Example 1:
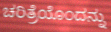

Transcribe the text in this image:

ಚರಿತ್ರೆಯೊಂದನ್ನು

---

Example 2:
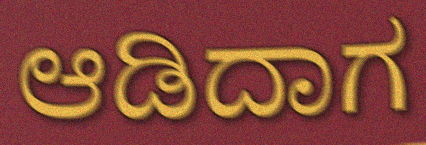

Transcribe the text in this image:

ಆಡಿದಾಗ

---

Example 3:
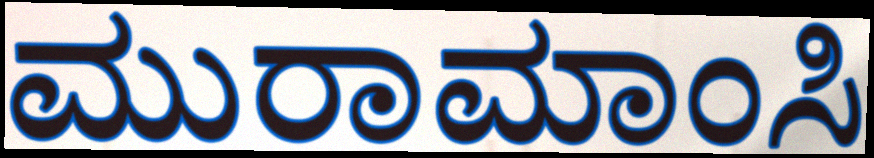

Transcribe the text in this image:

ಮುರಾಮಾಂಸಿ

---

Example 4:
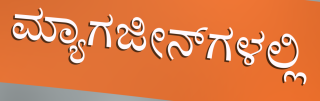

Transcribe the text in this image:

ಮ್ಯಾಗಜೀನ್‌ಗಳಲ್ಲಿ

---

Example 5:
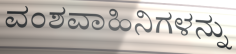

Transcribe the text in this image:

ವಂಶವಾಹಿನಿಗಳನ್ನು